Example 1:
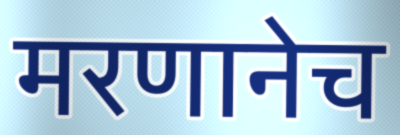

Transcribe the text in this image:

मरणानेच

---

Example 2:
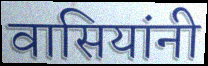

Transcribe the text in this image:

वासियांनी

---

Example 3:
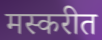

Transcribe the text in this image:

मस्करीत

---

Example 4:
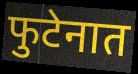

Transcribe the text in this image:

फुटेनात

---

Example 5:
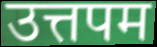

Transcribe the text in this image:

उत्तपम